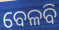
ବେଳବି